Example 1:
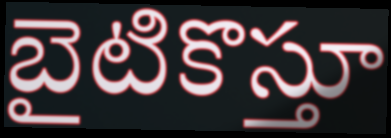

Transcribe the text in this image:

బైటికొస్తూ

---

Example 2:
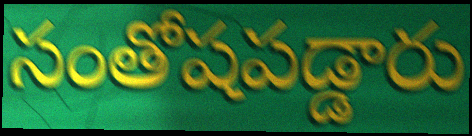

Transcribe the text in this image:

సంతోషపడ్డారు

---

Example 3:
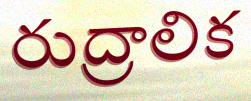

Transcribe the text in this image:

రుద్రాలిక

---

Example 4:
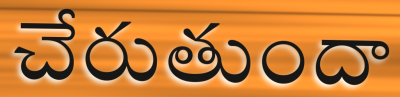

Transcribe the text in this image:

చేరుతుందా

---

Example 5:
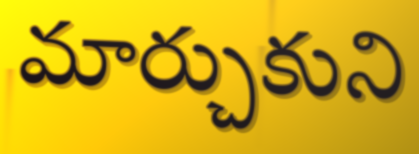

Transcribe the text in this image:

మార్చుకుని